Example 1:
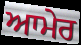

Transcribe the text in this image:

ਆਮੇਰ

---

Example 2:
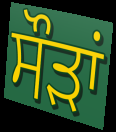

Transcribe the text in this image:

ਸੌੜਾਂ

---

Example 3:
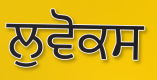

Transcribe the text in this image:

ਲੁਵੋਕਸ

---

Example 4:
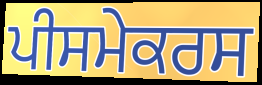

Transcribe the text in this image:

ਪੀਸਮੇਕਰਸ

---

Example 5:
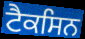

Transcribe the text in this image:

ਟੈਕਸਿਨ